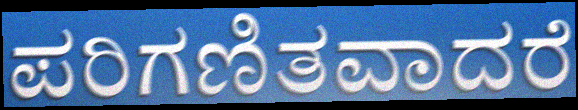
ಪರಿಗಣಿತವಾದರೆ